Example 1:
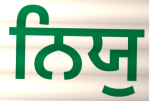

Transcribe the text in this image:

ਨਿਯੁ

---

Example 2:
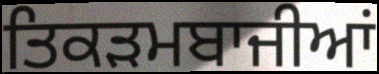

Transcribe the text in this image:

ਤਿਕੜਮਬਾਜੀਆਂ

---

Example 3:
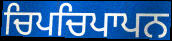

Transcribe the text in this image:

ਚਿਪਚਿਪਾਪਨ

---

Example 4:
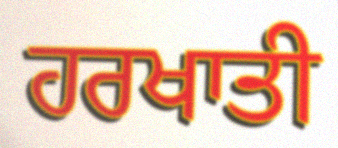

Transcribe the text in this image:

ਹਰਖਾਤੀ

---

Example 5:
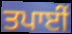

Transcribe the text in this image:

ਤਪਾਈਂ